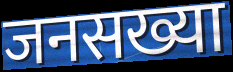
जनसख्या